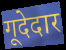
गूदेदार